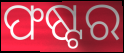
ଫଷ୍ଟର